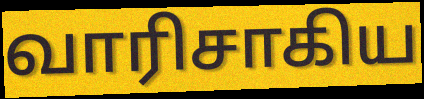
வாரிசாகிய